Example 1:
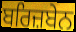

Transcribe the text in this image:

ਬਰਿਜ਼ਬੇਨ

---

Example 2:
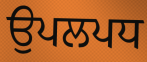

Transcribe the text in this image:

ਉਪਲਪਧ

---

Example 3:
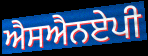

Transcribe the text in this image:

ਐਸਐਨਏਪੀ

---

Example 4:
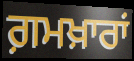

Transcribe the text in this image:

ਗ਼ਮਖ਼ਾਰਾਂ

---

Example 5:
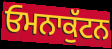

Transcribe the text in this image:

ਓਮਨਾਕੁੱਟਨ